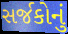
સર્જકોનું